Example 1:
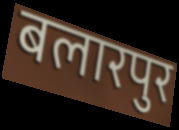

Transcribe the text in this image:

बलारपुर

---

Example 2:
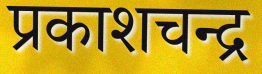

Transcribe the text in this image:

प्रकाशचन्द्र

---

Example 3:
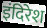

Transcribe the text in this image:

इंदिरेश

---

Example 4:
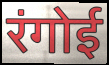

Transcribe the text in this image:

रंगोई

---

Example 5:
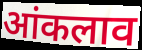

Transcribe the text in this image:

आंकलाव